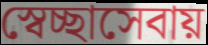
স্বেচ্ছাসেবায়